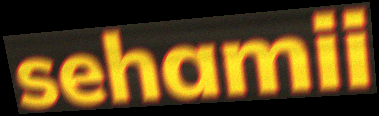
sehamii